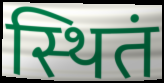
स्थितं